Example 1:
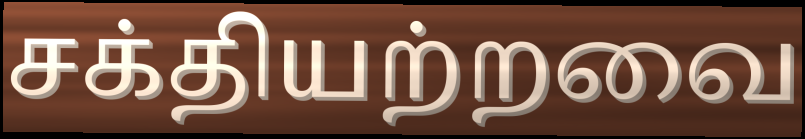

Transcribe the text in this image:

சக்தியற்றவை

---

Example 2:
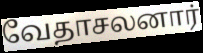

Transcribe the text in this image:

வேதாசலனார்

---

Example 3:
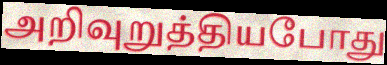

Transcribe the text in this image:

அறிவுறுத்தியபோது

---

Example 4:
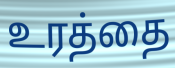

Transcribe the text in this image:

உரத்தை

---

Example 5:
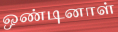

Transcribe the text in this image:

ஒண்டினாள்